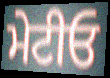
ਮੇਟੀਓ